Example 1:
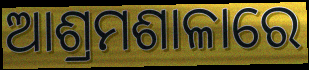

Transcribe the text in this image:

ଆଶ୍ରମଶାଳାରେ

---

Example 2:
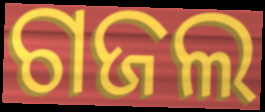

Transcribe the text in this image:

ଗଜଲ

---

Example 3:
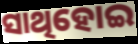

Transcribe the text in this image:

ସାଥିହୋଇ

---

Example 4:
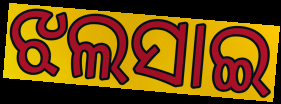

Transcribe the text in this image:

ଝଲସାଇ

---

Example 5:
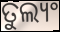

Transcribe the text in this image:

ତୁଲ୍ୟଂ